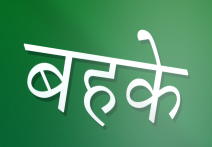
बहके